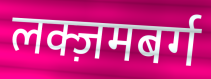
लक्ज़मबर्ग